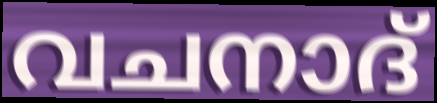
വചനാദ്